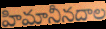
హిమానీనదాల